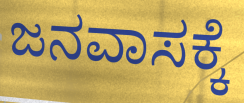
ಜನವಾಸಕ್ಕೆ